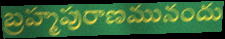
బ్రహ్మపురాణమునందు